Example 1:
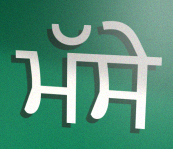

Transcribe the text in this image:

ਮੱਸੇ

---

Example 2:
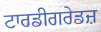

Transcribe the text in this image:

ਟਾਰਡੀਗਰੇਡਜ਼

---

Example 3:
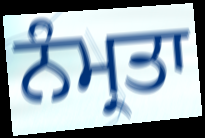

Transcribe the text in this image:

ਨੰਮ੍ਰਤਾ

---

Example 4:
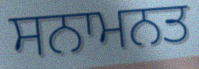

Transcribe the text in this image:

ਸਨਾਮਨਤ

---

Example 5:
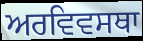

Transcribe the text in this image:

ਅਰਵਿਵਸਥਾ